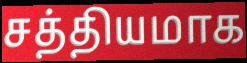
சத்தியமாக